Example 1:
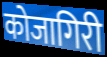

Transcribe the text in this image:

कोजागिरी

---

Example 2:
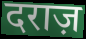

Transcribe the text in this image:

दराज़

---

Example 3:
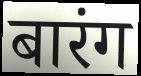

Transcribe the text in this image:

बारंग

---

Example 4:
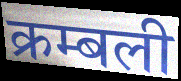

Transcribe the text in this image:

क्रम्बली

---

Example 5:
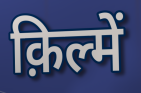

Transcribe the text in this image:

क़िल्में